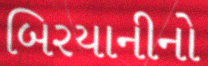
બિરયાનીનો